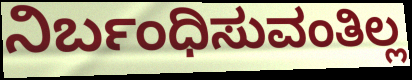
ನಿರ್ಬಂಧಿಸುವಂತಿಲ್ಲ